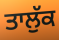
ਤਾਲੁੱਕ